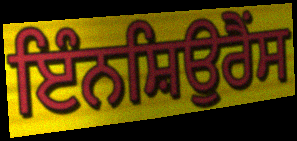
ਇੰਨਸ਼ਿਉਰੈਂਸ